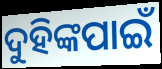
ଦୁହିଙ୍କପାଇଁ